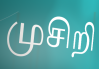
முசிறி